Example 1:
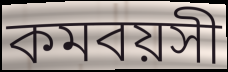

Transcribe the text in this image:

কমবয়সী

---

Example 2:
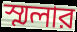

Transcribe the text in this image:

স্মলার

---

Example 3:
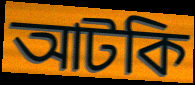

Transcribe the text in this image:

আটকি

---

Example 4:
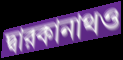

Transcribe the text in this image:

দ্বারকানাথও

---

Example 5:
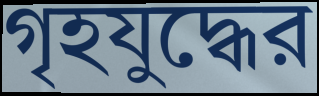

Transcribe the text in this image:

গৃহযুদ্ধের